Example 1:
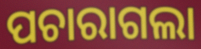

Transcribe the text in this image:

ପଚାରାଗଲା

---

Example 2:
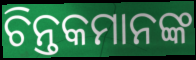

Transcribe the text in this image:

ଚିନ୍ତକମାନଙ୍କ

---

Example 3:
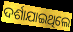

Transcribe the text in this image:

ଦର୍ଶାଯାଇଥିଲେ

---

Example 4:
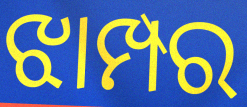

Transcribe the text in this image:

ଝାମ୍ପର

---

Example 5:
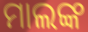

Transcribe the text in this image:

ମାଲଙ୍କ